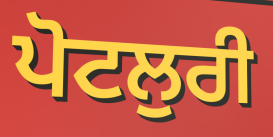
ਪੋਟਲੁਰੀ